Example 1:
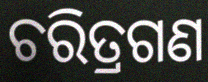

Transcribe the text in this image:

ଚରିତ୍ରଗଣ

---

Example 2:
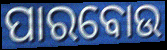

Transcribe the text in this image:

ପାରବୋଉ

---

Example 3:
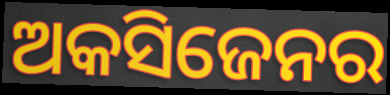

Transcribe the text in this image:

ଅକସିଜେନର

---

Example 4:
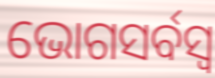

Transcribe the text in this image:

ଭୋଗସର୍ବସ୍ୱ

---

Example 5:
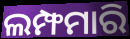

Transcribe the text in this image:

ଲମ୍ଫମାରି